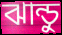
ঝান্ডু